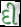
દી